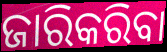
ଜାରିକରିବା